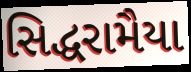
સિદ્ધરામૈયા